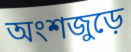
অংশজুড়ে